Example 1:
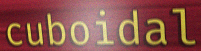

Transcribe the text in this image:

cuboidal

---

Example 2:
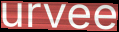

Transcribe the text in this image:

urvee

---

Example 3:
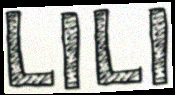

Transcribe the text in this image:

LILI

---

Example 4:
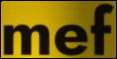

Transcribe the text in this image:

mef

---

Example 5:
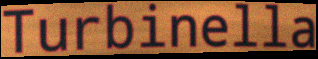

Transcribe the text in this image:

Turbinella